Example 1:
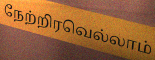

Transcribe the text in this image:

நேற்றிரவெல்லாம்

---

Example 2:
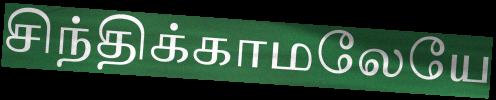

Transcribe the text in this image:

சிந்திக்காமலேயே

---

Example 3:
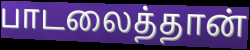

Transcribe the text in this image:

பாடலைத்தான்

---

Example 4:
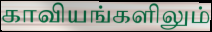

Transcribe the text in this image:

காவியங்களிலும்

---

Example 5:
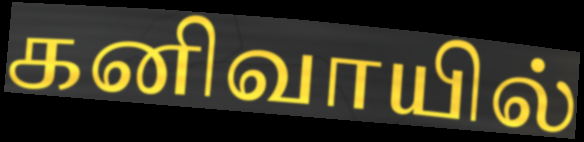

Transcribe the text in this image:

கனிவாயில்